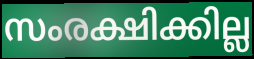
സംരക്ഷിക്കില്ല